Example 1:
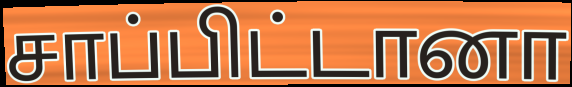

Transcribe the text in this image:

சாப்பிட்டானா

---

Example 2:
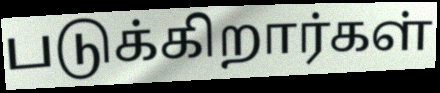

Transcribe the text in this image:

படுக்கிறார்கள்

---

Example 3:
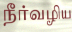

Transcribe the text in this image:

நீர்வழிய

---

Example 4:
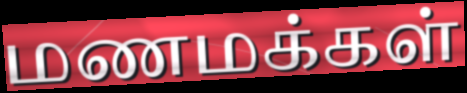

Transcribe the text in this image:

மணமக்கள்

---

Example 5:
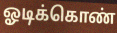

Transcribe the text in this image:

ஓடிக்கொண்